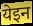
येइन